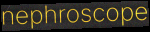
nephroscope